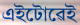
এইটোৱেই